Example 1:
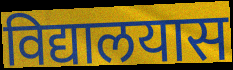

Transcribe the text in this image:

विद्यालयास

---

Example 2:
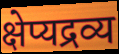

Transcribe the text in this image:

क्षेप्यद्रव्य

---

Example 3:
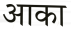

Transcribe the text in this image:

आका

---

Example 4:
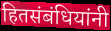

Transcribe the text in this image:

हितसंबंधियांनी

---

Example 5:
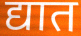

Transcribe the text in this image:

द्यात